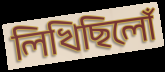
লিখিছিলোঁ